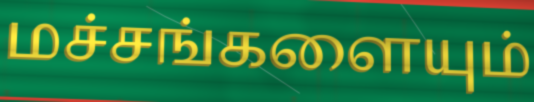
மச்சங்களையும்